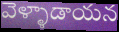
వెళ్ళాడాయన